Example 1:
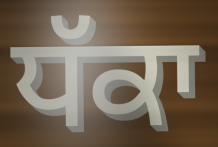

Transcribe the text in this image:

ਧੱਕਾ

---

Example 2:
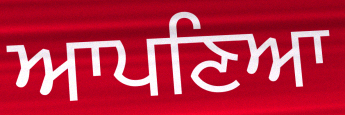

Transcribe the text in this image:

ਆਪਣਿਆ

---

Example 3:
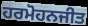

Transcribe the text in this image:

ਹਰਮੋਹਨਜੀਤ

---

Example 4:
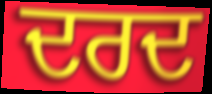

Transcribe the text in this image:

ਦਰਦ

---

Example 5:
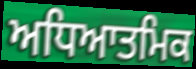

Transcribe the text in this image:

ਅਧਿਆਤਮਿਕ